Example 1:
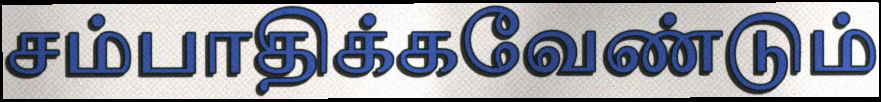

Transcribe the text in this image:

சம்பாதிக்கவேண்டும்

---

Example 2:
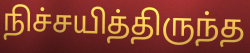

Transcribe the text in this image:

நிச்சயித்திருந்த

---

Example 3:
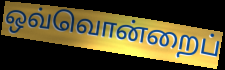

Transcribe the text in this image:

ஒவ்வொன்றைப்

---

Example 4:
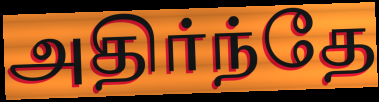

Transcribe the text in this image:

அதிர்ந்தே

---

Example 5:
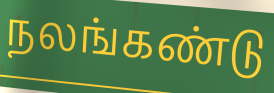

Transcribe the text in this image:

நலங்கண்டு